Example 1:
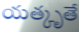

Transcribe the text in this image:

యత్కృతే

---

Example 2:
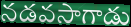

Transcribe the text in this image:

నడవసాగాడు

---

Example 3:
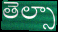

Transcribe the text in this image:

తెల్సా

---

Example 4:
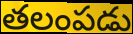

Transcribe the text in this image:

తలంపడు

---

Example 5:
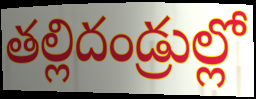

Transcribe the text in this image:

తల్లిదండ్రుల్లో